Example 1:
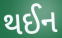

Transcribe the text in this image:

થઈન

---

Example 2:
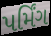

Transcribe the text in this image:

પર્મિંગ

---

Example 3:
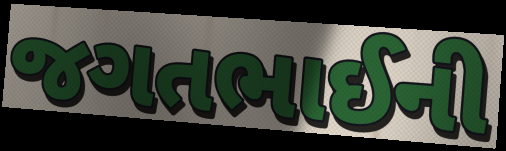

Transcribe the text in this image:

જગતભાઈની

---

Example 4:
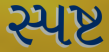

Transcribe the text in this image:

સ્પષ્ટ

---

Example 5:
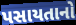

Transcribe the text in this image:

પસાયતાનો